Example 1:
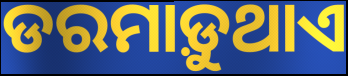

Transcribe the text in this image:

ଡରମାଡ଼ୁଥାଏ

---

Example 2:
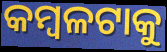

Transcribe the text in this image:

କମ୍ବଳଟାକୁ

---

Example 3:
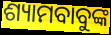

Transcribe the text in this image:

ଶ୍ୟାମବାବୁଙ୍କ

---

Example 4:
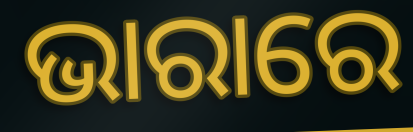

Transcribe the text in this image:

ଭାରାରେ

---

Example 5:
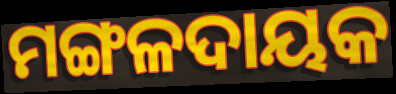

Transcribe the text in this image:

ମଙ୍ଗଳଦାୟକ